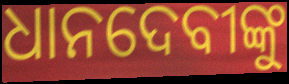
ଧାନଦେବୀଙ୍କୁ